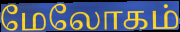
மேலோகம்